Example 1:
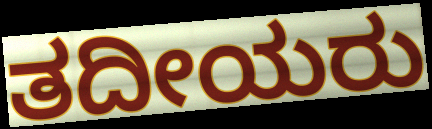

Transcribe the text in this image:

ತದೀಯರು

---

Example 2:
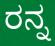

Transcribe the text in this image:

ರನ್ನ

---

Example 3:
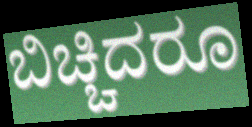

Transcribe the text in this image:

ಬಿಚ್ಚಿದರೂ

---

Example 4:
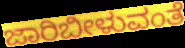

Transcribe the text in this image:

ಜಾರಿಬೀಳುವಂತೆ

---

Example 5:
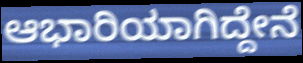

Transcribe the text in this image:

ಆಭಾರಿಯಾಗಿದ್ದೇನೆ